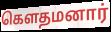
கெளதமனார்